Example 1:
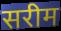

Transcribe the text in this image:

सरीम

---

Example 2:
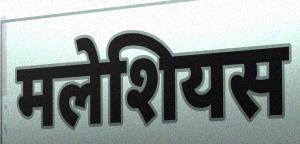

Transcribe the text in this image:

मलेशियस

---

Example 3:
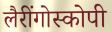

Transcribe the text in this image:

लैरींगोस्कोपी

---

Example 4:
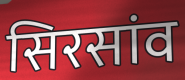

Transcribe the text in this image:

सिरसांव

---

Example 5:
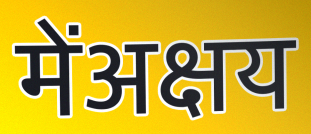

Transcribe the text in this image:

मेंअक्षय